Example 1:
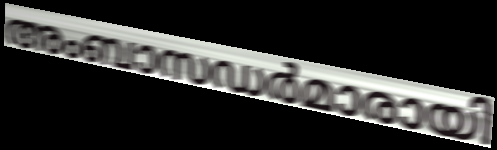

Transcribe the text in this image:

അംബാസഡർമാരായി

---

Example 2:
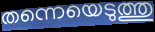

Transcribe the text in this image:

തന്നെയെടുത്തു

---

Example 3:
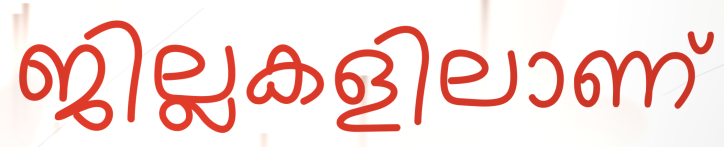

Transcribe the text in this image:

ജില്ലകളിലാണ്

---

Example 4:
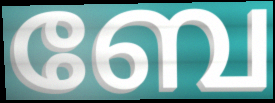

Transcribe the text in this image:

ബേ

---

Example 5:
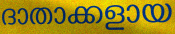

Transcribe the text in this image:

ദാതാക്കളായ